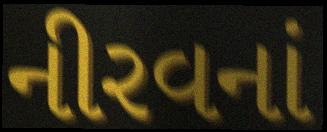
નીરવનાં